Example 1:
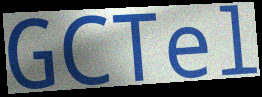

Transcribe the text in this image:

GCTel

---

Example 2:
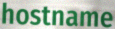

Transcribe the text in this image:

hostname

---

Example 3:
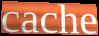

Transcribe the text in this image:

cache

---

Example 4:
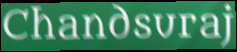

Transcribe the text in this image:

Chandsuraj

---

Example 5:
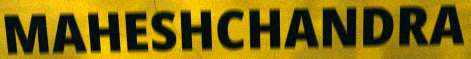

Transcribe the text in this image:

MAHESHCHANDRA